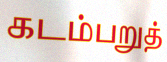
கடம்பறுத்